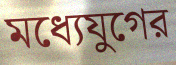
মধ্যেযুগের